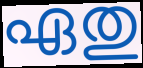
ഏതു